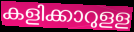
കളിക്കാറുളള